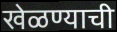
खेळण्याची